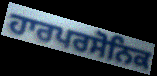
ਹਾਰਪਰਸੋਨਿਕ